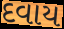
દવાય